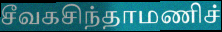
சீவகசிந்தாமணிச்